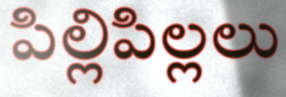
పిల్లిపిల్లలు